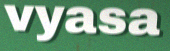
vyasa